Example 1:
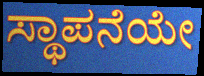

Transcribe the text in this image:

ಸ್ಥಾಪನೆಯೇ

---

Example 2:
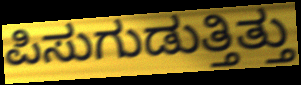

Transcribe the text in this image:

ಪಿಸುಗುಡುತ್ತಿತ್ತು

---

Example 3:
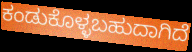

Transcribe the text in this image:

ಕಂಡುಕೊಳ್ಳಬಹುದಾಗಿದೆ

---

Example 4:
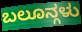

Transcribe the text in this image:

ಬಲೂನ್ಗಳು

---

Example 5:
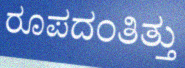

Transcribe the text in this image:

ರೂಪದಂತಿತ್ತು